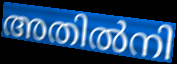
അതിൽനി